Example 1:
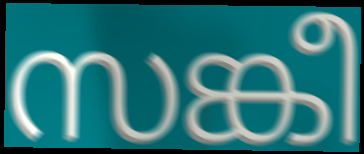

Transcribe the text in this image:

സങ്കീ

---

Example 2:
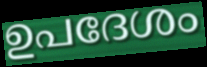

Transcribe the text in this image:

ഉപദേശം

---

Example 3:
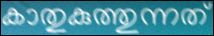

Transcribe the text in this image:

കാതുകുത്തുന്നത്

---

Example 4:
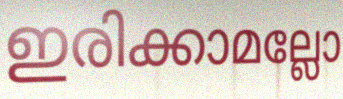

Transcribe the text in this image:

ഇരിക്കാമല്ലോ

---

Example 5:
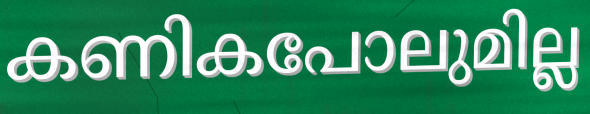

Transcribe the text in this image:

കണികപോലുമില്ല